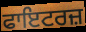
ਫਾਇਟਰਜ਼